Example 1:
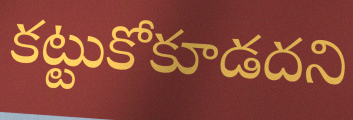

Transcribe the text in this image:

కట్టుకోకూడదని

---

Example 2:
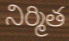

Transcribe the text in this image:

నిర్మిత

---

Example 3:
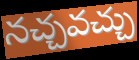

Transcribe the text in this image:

నచ్చవచ్చు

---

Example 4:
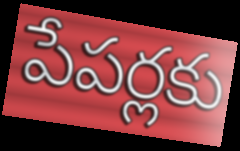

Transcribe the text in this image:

పేపర్లకు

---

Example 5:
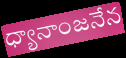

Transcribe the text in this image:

ధ్యానాంజనేన